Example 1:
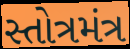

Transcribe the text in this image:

સ્તોત્રમંત્ર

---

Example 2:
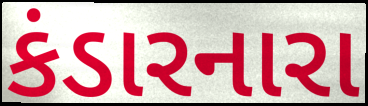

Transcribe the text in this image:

કંડારનારા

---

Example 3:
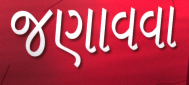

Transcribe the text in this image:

જણાવવા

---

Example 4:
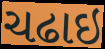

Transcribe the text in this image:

ચઢાઇ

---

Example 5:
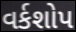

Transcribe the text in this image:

વર્કશોપ